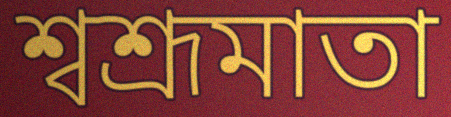
শ্বশ্রূমাতা